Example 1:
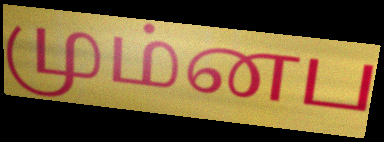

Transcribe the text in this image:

மும்னப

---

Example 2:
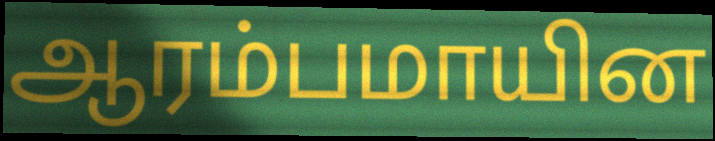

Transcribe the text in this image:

ஆரம்பமாயின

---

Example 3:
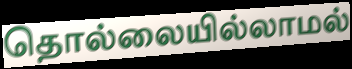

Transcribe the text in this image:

தொல்லையில்லாமல்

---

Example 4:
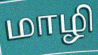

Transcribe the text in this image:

மாழி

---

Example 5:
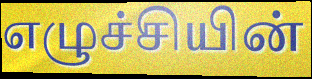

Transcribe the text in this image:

எழுச்சியின்